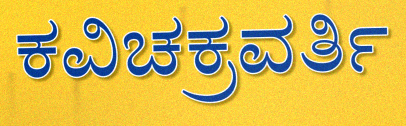
ಕವಿಚಕ್ರವರ್ತಿ